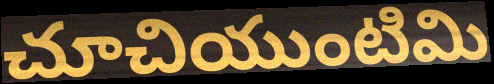
చూచియుంటిమి